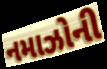
નમાઝોની